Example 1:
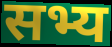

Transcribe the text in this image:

सभ्य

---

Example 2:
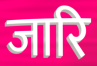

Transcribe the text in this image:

जारि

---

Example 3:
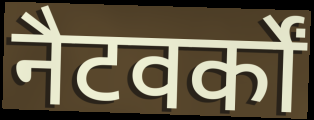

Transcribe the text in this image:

नैटवर्कों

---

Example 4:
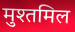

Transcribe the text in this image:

मुश्तमिल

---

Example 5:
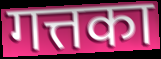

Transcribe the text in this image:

गत्तका